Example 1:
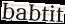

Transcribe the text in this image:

babtit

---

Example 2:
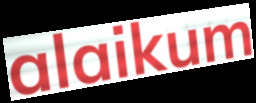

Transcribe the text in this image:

alaikum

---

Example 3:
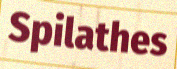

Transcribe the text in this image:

Spilathes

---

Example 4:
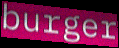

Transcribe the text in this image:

burger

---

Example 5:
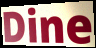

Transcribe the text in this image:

Dine